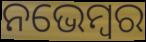
ନଭେମ୍ବର